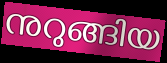
നുറുങ്ങിയ